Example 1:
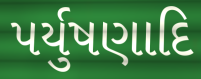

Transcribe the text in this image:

પર્યુષણાદિ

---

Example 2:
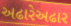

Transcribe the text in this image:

અઢારેઅઢાર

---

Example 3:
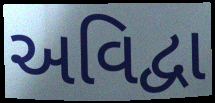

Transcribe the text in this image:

અવિદ્વા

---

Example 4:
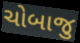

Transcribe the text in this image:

ચોબાજુ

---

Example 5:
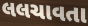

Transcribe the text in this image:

લલચાવતા